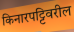
किनारपट्टिवरील